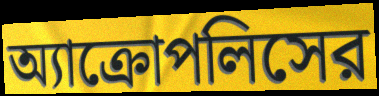
অ্যাক্রোপলিসের